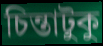
চিন্তাটুকু